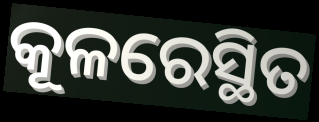
କୂଳରେସ୍ଥିତ